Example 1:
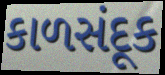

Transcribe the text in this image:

કાળસંદૂક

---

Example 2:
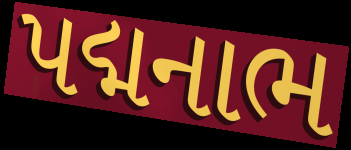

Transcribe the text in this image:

પદ્મનાભ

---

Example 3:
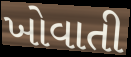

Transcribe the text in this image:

ખોવાતી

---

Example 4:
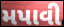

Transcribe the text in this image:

મપાવી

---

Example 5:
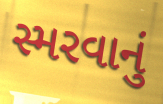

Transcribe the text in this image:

સ્મરવાનું